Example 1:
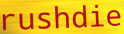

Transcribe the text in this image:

rushdie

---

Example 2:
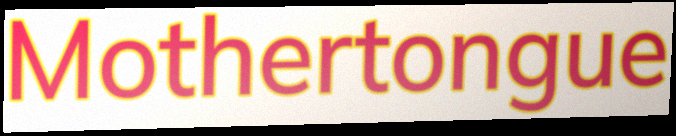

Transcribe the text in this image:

Mothertongue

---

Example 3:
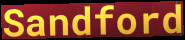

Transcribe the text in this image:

Sandford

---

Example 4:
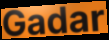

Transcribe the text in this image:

Gadar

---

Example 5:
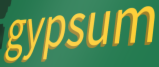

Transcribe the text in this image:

gypsum